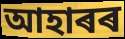
আহাৰৰ